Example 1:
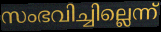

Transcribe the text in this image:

സംഭവിച്ചില്ലെന്ന്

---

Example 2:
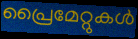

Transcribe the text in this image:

പ്രൈമേറ്റുകൾ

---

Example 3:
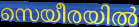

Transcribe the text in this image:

സെയീരയിൽ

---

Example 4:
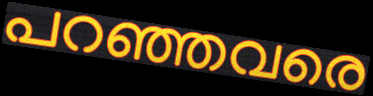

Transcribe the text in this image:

പറഞ്ഞവരെ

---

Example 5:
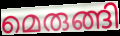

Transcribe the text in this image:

മെരുങ്ങി